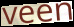
veen